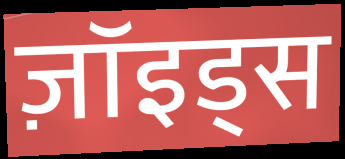
ज़ॉइड्स